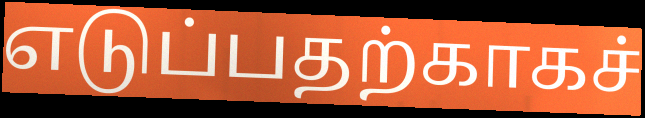
எடுப்பதற்காகச்